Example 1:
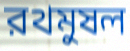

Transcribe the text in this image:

রথমুষল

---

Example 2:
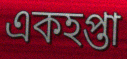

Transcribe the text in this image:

একহপ্তা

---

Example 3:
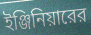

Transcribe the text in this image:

ইঞ্জিনিয়ারের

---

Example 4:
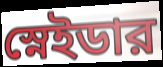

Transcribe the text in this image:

স্নেইডার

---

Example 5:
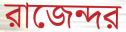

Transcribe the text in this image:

রাজেন্দর